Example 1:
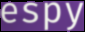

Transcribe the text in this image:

espy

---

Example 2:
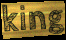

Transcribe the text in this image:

king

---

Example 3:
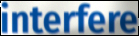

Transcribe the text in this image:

interfere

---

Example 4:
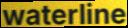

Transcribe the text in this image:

waterline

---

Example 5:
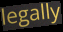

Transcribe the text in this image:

legally